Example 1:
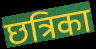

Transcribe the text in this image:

छत्रिका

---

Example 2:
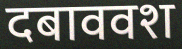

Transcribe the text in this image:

दबाववश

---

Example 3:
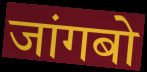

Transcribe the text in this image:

जांगबो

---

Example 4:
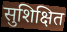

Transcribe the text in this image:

सुशिक्षित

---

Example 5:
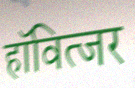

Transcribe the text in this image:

हॉवित्जर